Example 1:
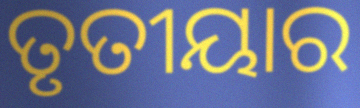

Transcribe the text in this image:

ତୃତୀୟାର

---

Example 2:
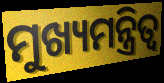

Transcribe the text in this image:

ମୁଖ୍ୟମନ୍ତ୍ରିତ୍ୱ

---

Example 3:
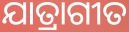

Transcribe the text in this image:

ଯାତ୍ରାଗୀତ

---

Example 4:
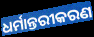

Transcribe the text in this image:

ଧର୍ମାନ୍ତରୀକରଣ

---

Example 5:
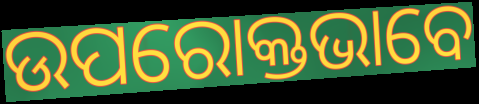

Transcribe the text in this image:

ଉପରୋକ୍ତଭାବେ